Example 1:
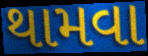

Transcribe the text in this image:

થામવા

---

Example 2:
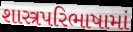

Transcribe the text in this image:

શાસ્ત્રપરિભાષામાં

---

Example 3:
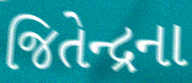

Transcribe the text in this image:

જિતેન્દ્રના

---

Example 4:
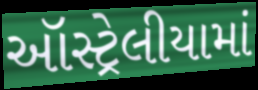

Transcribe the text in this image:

ઑસ્ટ્રેલીયામાં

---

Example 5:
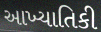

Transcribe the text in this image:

આખ્યાતિકી